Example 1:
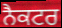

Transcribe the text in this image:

ਨੈਕਟਰ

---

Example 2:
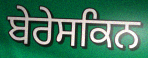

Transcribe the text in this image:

ਬੇਰੇਸਕਿਨ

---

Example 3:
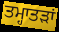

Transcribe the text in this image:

ਤਮ੍ਹਾਤੜਾਂ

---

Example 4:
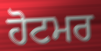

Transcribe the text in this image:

ਹੋਟਮਰ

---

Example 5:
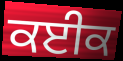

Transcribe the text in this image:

ਕਈਕ